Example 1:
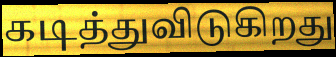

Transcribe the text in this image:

கடித்துவிடுகிறது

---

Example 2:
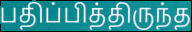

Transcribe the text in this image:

பதிப்பித்திருந்த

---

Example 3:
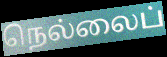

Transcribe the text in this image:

நெல்லைப்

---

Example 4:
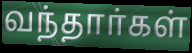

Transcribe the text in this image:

வந்தார்கள்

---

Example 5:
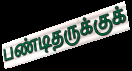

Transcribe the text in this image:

பண்டிதருக்குக்